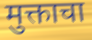
मुक्ताचा